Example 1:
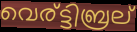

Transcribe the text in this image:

വെര്ട്ടിബ്രല്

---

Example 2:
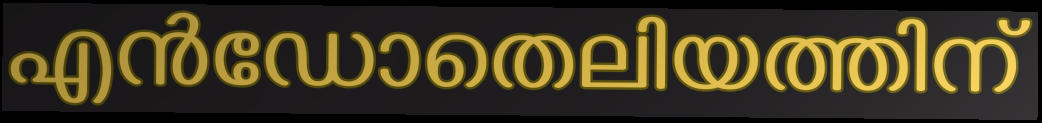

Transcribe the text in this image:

എൻഡോതെലിയത്തിന്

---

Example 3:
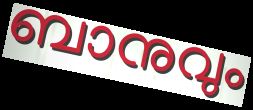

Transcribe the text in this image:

ബാനുവും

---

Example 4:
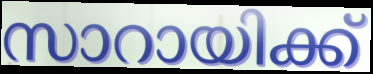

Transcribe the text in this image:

സാറായിക്ക്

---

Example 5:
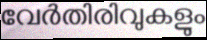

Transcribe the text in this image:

വേർതിരിവുകളും